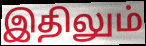
இதிலும்